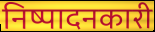
निष्पादनकारी